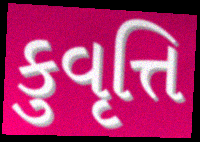
કુવૃત્તિ